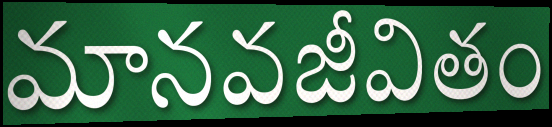
మానవజీవితం